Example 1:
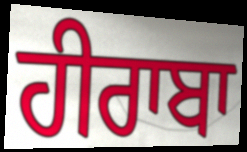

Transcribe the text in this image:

ਹੀਰਾਬਾ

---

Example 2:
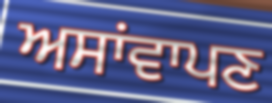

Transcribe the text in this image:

ਅਸਾਂਵਾਪਣ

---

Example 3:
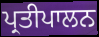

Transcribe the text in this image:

ਪ੍ਰਤੀਪਾਲਨ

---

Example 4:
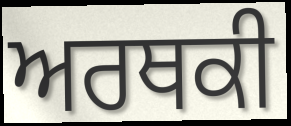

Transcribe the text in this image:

ਅਰਥਕੀ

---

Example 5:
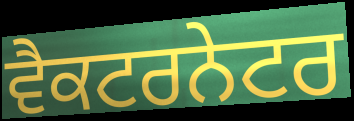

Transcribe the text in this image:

ਵੈਕਟਰਨੇਟਰ